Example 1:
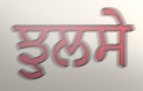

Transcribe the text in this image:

ਝੁਲਸੇ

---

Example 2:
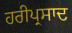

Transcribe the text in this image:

ਹਰੀਪ੍ਰਸਾਦ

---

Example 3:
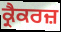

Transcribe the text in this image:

ਕ੍ਰੈਕਰਜ਼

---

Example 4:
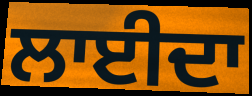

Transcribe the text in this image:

ਲਾਈਦਾ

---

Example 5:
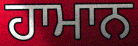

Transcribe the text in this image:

ਹਾਮਾਨ